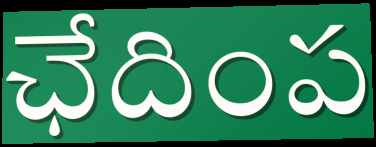
ఛేదింప